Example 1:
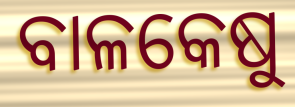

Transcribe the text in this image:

ବାଳକେଷୁ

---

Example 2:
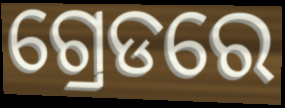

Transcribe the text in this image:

ଗ୍ରେଡରେ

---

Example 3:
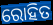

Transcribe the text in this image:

ରୋହିତ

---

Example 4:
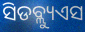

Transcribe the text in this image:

ସିଡବ୍ଲ୍ୟୁଏସ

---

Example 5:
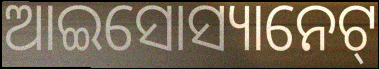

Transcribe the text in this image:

ଆଇସୋସ୍ୟାନେଟ୍